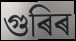
গুৰিৰ